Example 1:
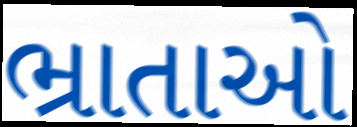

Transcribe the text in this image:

ભ્રાતાઓ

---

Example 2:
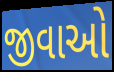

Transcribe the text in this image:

જીવાઓ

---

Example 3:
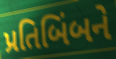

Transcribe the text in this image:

પ્રતિબિંબને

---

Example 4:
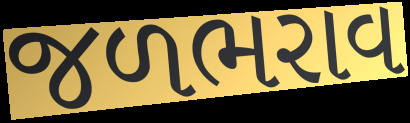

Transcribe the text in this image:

જળભરાવ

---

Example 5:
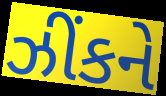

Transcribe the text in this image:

ઝીંકને